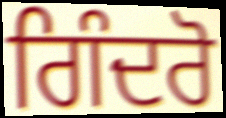
ਗਿੰਦਰੋ